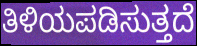
ತಿಳಿಯಪಡಿಸುತ್ತದೆ